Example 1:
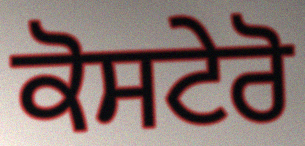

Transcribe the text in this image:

ਕੋਸਟੇਰੋ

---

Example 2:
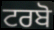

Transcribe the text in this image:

ਟਰਬੋ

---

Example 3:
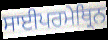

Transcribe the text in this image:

ਸਾਈਪਰਮੇਥ੍ਰਿਨ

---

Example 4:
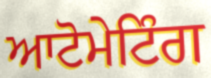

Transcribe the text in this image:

ਆਟੋਮੇਟਿੰਗ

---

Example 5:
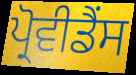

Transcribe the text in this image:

ਪ੍ਰੋਵੀਡੈਂਸ